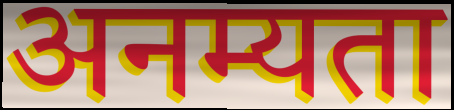
अनम्यता